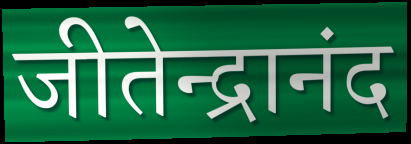
जीतेन्द्रानंद